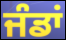
ਜੰਡਾਂ